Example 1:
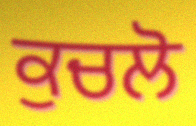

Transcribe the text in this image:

ਕੁਚਲੋ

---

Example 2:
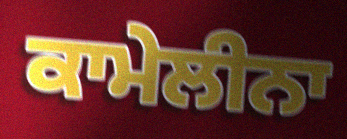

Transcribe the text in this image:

ਕਾਮੇਲੀਨਾ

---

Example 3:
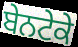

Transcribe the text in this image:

ਬੇਨਟੇਕੇ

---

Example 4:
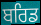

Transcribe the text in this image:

ਬਰਿਡ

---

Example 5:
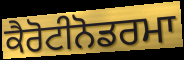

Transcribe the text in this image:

ਕੈਰੋਟੀਨੋਡਰਮਾ